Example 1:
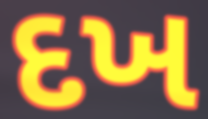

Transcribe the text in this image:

દખ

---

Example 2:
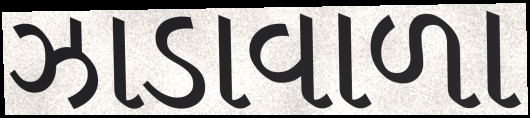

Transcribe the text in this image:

ઝાડાવાળા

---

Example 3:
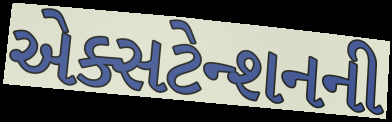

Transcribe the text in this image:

એક્સટેન્શનની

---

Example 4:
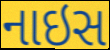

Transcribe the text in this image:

નાઇસ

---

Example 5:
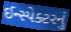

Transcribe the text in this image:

ઈન્સ્પેક્ટરનું